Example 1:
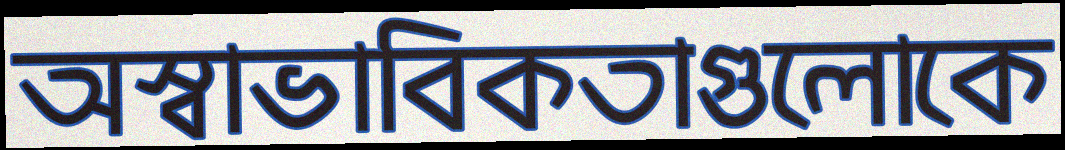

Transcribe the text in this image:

অস্বাভাবিকতাগুলোকে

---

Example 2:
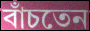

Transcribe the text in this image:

বাঁচতেন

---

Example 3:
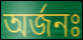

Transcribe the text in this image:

অর্জনঃ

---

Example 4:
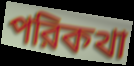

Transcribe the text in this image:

পরিকথা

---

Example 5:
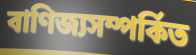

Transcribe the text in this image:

বাণিজ্যসম্পর্কিত